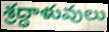
శ్రద్ధాళువులు